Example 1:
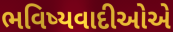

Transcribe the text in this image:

ભવિષ્યવાદીઓએ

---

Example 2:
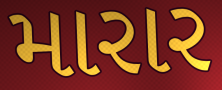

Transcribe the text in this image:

મારાર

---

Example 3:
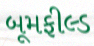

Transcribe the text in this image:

બૂમફીલ્ડ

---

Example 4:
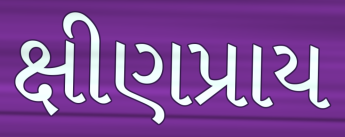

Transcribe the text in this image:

ક્ષીણપ્રાય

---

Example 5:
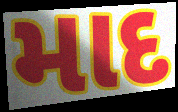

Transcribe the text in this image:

માદ